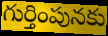
గుర్తింపునకు